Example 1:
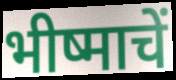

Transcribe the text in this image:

भीष्माचें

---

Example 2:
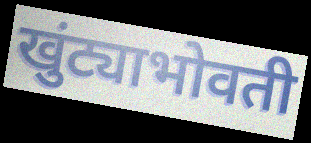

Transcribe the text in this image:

खुंट्याभोवती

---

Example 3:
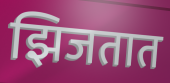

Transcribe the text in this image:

झिजतात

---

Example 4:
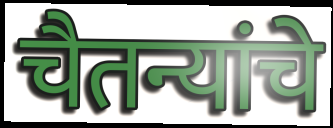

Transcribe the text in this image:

चैतन्यांचे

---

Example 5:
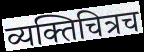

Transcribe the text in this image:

व्यक्तिचित्रच